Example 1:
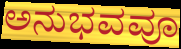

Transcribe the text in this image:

ಅನುಭವವೂ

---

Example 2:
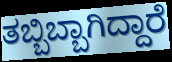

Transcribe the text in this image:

ತಬ್ಬಿಬ್ಬಾಗಿದ್ದಾರೆ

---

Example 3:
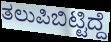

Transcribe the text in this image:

ತಲುಪಿಬಿಟ್ಟಿದ್ದೆ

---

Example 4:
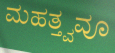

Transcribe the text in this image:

ಮಹತ್ತ್ವವೂ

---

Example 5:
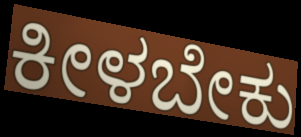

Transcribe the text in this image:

ಕೀಳಬೇಕು